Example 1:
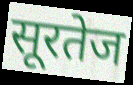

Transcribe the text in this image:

सूरतेज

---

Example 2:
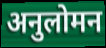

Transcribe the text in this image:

अनुलोमन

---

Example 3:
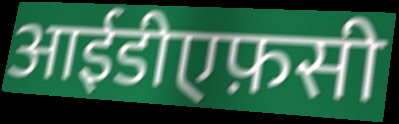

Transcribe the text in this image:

आईडीएफ़सी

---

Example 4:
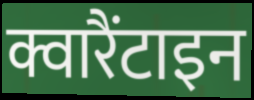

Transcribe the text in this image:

क्वारैंटाइन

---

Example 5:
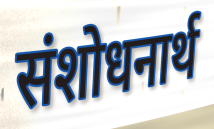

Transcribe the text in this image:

संशोधनार्थ